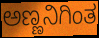
ಅಣ್ಣನಿಗಿಂತ